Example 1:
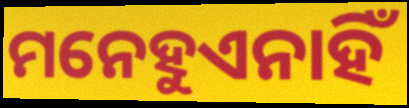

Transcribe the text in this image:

ମନେହୁଏନାହିଁ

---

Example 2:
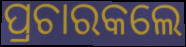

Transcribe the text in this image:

ପ୍ରଚାରକଲେ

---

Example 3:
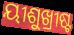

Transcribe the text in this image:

ୟୀଶୁଖ୍ରୀଷ୍ଟ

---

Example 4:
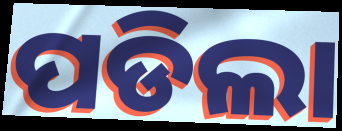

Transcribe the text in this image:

ପଡିଲା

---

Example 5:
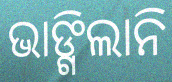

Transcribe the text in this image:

ଭାଙ୍ଗିଲାନି